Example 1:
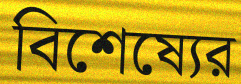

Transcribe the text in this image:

বিশেষ্যের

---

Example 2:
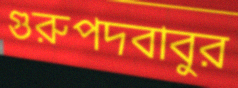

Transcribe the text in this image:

গুরুপদবাবুর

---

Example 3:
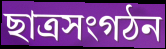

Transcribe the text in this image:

ছাত্রসংগঠন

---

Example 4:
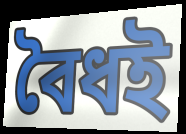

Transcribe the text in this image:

বৈধই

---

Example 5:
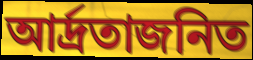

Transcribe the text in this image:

আর্দ্রতাজনিত